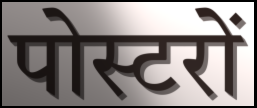
पोस्‍टरों